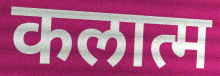
कलात्म